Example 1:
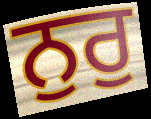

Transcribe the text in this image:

ਨੁਰੁ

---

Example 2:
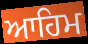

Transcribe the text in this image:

ਆਹਿਮ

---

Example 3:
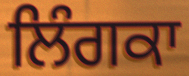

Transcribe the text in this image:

ਲਿੰਗਕਾ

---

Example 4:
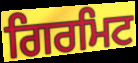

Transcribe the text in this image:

ਗਿਰਮਿਟ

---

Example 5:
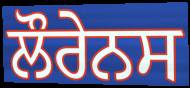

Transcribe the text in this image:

ਲੌਰੇਨਸ